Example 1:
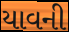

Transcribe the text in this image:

યાવની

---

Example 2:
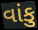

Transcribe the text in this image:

વાંકુ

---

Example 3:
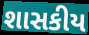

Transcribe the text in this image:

શાસકીય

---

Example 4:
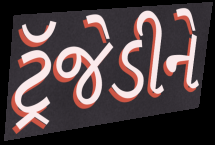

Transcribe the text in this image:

ટ્રૅજેડીને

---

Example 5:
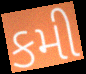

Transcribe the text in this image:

કમી